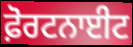
ਫ਼ੋਰਟਨਾਈਟ